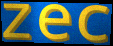
zec